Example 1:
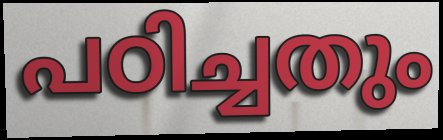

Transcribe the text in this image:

പഠിച്ചതും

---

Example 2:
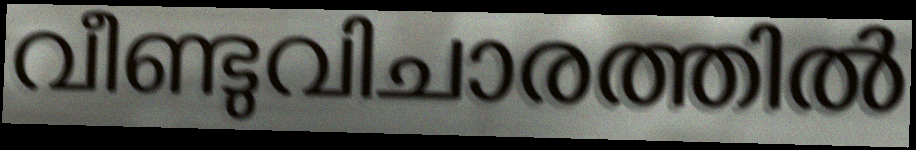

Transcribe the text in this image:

വീണ്ടുവിചാരത്തിൽ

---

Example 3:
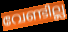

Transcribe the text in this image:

വേണ്ടില്ല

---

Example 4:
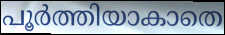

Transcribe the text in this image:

പൂർത്തിയാകാതെ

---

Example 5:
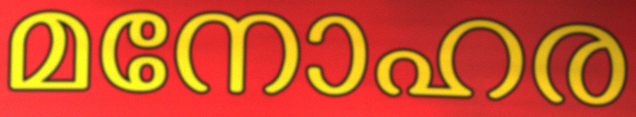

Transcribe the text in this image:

മനോഹര